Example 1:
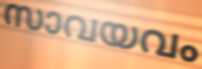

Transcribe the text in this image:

സാവയവം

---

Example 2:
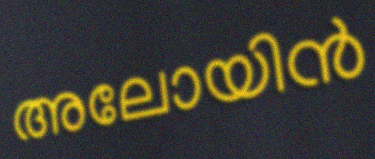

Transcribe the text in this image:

അലോയിൻ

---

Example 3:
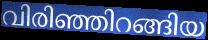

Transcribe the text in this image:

വിരിഞ്ഞിറങ്ങിയ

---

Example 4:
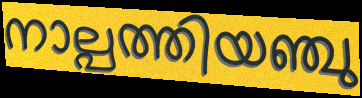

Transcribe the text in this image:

നാല്പത്തിയഞ്ചു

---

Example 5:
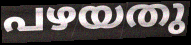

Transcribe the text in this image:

പഴയതു